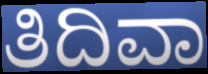
ತಿದಿವಾ